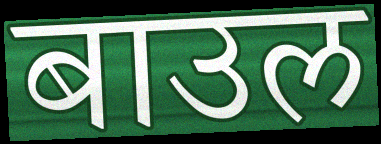
बाउल